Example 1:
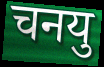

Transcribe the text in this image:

चनयु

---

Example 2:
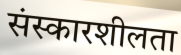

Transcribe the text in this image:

संस्कारशीलता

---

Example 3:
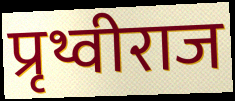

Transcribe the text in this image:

प्रृथ्वीराज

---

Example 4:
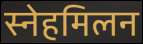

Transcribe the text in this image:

स्नेहमिलन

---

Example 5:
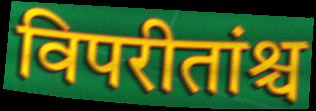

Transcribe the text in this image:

विपरीतांश्च